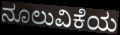
ನೂಲುವಿಕೆಯ